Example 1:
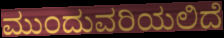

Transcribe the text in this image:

ಮುಂದುವರಿಯಲಿದೆ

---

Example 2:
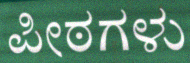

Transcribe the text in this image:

ಪೀಠಗಳು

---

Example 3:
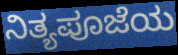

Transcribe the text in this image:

ನಿತ್ಯಪೂಜೆಯ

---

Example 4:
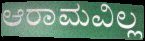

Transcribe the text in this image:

ಆರಾಮವಿಲ್ಲ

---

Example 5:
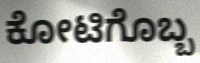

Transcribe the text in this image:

ಕೋಟಿಗೊಬ್ಬ